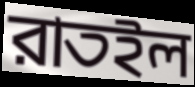
রাতইল